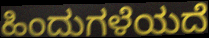
ಹಿಂದುಗಳೆಯದೆ